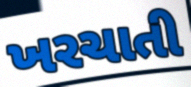
ખરચાતી